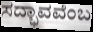
ಸದ್ಭಾವವೆಂಬ